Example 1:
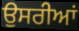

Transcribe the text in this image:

ਉਸਰੀਆਂ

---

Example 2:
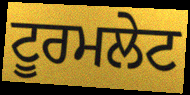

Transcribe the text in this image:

ਟੂਰਮਲੇਟ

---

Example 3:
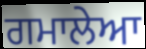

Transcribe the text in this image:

ਗਮਾਲੇਆ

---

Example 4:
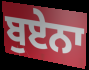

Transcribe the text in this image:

ਬੁਏਨਾ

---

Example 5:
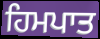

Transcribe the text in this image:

ਹਿਮਪਾਤ